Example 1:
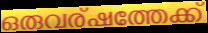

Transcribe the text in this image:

ഒരുവര്ഷത്തേക്ക്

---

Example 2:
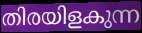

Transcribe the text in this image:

തിരയിളകുന്ന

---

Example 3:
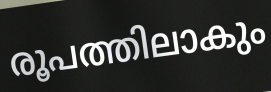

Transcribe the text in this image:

രൂപത്തിലാകും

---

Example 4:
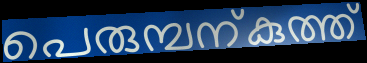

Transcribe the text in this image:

പെരുമ്പന്കുത്ത്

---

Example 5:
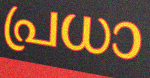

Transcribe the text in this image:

പ്രധാ